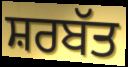
ਸ਼ਰਬੱਤ